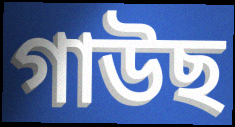
গাউছ